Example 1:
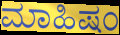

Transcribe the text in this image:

ಮಾಹಿಷಂ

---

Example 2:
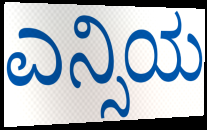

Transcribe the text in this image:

ಎನ್ಸಿಯ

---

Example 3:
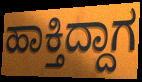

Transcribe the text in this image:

ಹಾಕ್ತಿದ್ದಾಗ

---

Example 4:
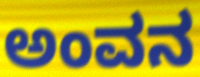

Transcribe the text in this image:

ಅಂವನ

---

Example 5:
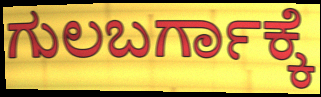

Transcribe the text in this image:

ಗುಲಬರ್ಗಾಕ್ಕೆ